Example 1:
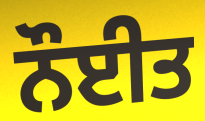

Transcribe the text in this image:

ਨੌਈਤ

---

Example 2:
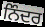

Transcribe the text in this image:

ਨਿੰਦਰ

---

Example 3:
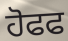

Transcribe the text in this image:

ਹੋਫਫ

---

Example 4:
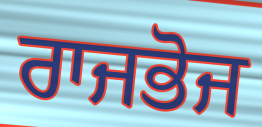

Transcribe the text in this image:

ਰਾਜਭੋਜ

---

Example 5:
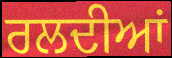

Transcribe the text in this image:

ਰਲਦੀਆਂ